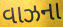
વાઝના